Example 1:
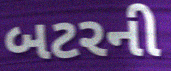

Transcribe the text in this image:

બટરની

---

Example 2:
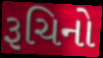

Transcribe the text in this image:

રૂચિનો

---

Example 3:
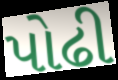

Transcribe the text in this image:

પોઢી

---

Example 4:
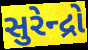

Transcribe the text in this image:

સુરેન્દ્રો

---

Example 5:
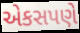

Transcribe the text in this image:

એકસપણે